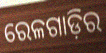
ରେଳଗାଡ଼ିର